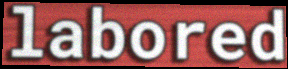
labored